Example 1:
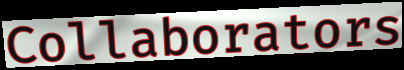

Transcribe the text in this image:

Collaborators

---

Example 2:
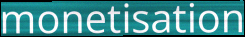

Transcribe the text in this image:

monetisation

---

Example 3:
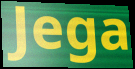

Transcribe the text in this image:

Jega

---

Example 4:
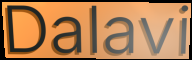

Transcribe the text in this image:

Dalavi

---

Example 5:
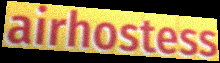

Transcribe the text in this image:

airhostess